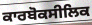
ਕਾਰਬੋਕਸੀਲਿਕ